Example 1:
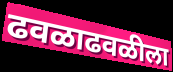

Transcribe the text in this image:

ढवळाढवळीला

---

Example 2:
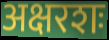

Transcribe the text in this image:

अक्षरशः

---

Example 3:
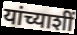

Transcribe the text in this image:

यांच्याशीं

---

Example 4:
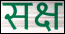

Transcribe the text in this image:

सक्ष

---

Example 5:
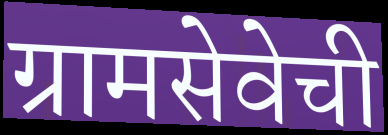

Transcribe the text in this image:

ग्रामसेवेची